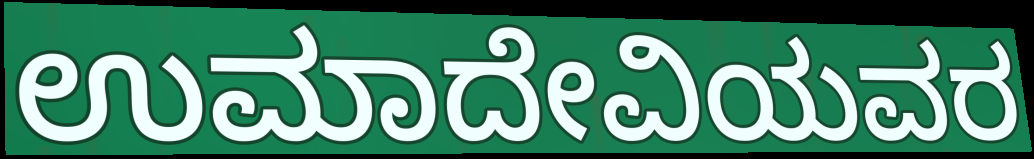
ಉಮಾದೇವಿಯವರ